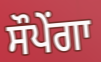
ਸੌਪੇਂਗਾ